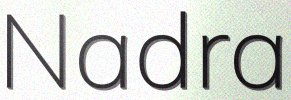
Nadra